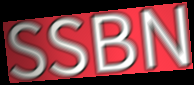
SSBN